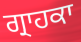
ਗ੍ਰਾਹਕਾ